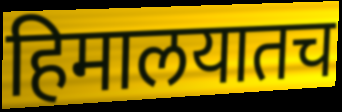
हिमालयातच